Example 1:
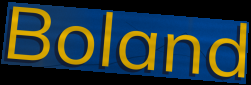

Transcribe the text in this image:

Boland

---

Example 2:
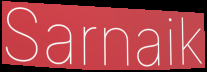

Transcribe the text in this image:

Sarnaik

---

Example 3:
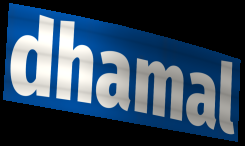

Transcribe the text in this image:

dhamal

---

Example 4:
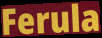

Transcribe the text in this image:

Ferula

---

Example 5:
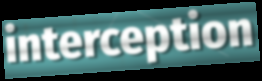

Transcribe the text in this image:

interception